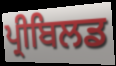
ਪ੍ਰੀਬਿਲਡ